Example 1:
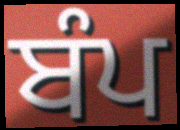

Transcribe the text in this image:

ਬੰਪ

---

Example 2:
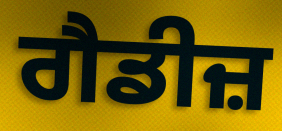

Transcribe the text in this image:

ਗੈਡੀਜ਼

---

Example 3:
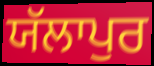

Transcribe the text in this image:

ਯੱਲਾਪੁਰ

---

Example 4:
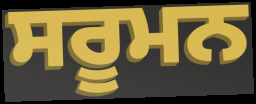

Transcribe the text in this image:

ਸਰੂਮਨ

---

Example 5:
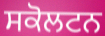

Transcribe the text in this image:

ਸਕੋਲਟਨ